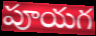
పూయగ